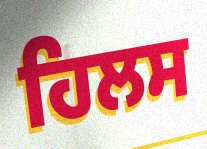
ਹਿਲਸ